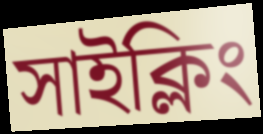
সাইক্লিং